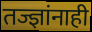
तज्ज्ञांनाही